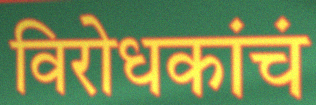
विरोधकांचं